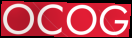
OCOG